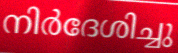
നിർദേശിച്ചു